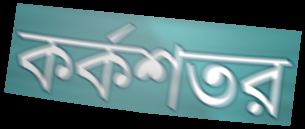
কর্কশতর